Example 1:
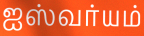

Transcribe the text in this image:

ஐஸ்வர்யம்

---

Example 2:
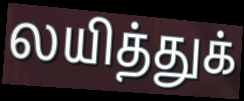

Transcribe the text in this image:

லயித்துக்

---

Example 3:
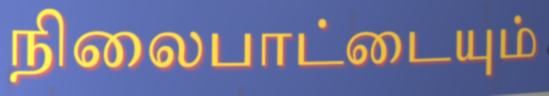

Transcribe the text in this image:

நிலைபாட்டையும்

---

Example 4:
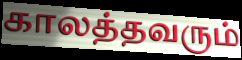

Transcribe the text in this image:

காலத்தவரும்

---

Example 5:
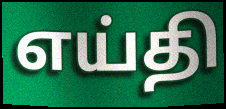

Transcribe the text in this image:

எய்தி